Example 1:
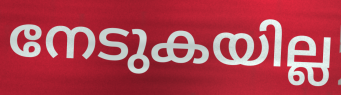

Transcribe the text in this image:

നേടുകയില്ല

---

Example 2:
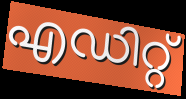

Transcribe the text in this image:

എഡിറ്റ്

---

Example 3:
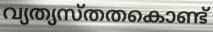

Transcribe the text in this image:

വ്യത്യസ്തതകൊണ്ട്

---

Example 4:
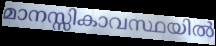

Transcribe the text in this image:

മാനസ്സികാവസ്ഥയിൽ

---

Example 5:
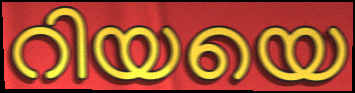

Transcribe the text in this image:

റിയയെ